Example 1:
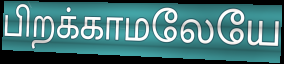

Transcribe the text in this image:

பிறக்காமலேயே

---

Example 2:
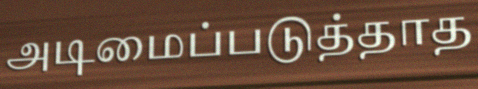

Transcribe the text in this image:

அடிமைப்படுத்தாத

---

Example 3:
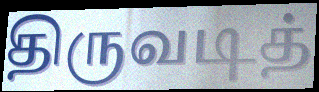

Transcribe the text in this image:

திருவடித்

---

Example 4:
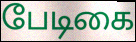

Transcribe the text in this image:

பேடிகை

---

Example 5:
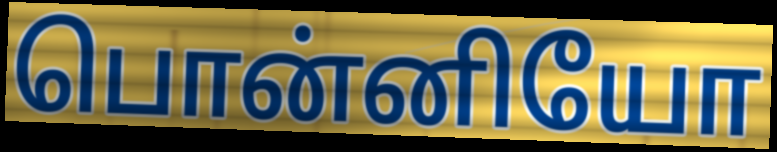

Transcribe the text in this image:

பொன்னியோ